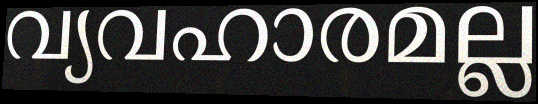
വ്യവഹാരമല്ല